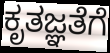
ಕೃತಜ್ಞತೆಗೆ